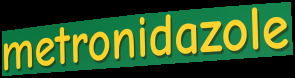
metronidazole